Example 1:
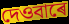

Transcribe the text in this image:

দেওবাৰে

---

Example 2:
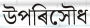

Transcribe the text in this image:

উপৰিসৌধ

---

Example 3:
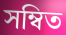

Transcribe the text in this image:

সম্বিত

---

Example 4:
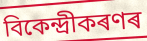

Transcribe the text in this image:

বিকেন্দ্ৰীকৰণৰ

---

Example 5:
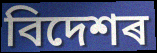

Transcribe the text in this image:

বিদেশৰ